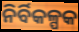
ନିର୍ବିକଳ୍ପକ